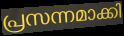
പ്രസന്നമാക്കി